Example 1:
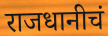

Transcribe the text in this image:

राजधानीचं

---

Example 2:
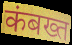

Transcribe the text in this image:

कंबख्त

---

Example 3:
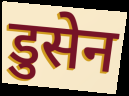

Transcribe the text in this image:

डुसेन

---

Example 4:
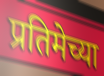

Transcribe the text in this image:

प्रतिमेच्या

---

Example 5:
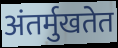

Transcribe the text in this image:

अंतर्मुखतेत